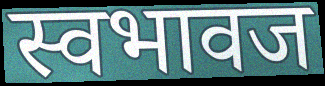
स्वभावज